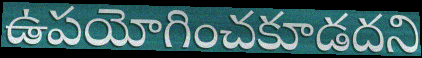
ఉపయోగించకూడదని